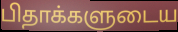
பிதாக்களுடைய